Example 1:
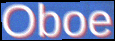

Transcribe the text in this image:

Oboe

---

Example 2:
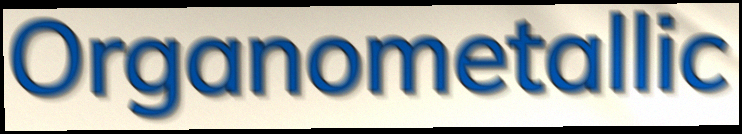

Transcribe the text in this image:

Organometallic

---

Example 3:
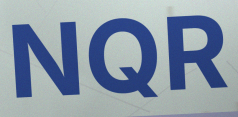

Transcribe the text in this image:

NQR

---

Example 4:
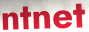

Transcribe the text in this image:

ntnet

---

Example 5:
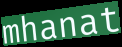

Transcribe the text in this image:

mhanat